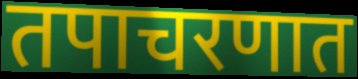
तपाचरणात